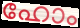
ഹോം